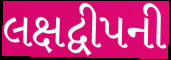
લક્ષદ્વીપની